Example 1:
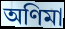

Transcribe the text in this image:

অণিমা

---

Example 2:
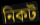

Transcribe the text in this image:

নিকট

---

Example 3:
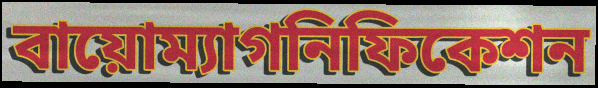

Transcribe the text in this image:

বায়োম্যাগনিফিকেশন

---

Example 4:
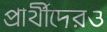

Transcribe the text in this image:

প্রার্থীদেরও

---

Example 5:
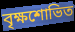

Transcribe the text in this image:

বৃক্ষশোভিত